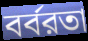
বর্বরতা